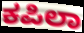
ಕಪಿಲಾ